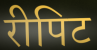
रीपिट